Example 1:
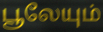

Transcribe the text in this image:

பூலேயும்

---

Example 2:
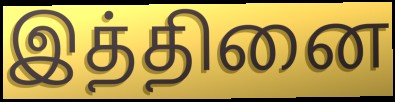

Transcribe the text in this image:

இத்தினை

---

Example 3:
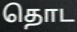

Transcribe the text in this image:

தொட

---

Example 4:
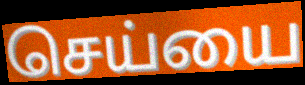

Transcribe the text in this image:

செய்யை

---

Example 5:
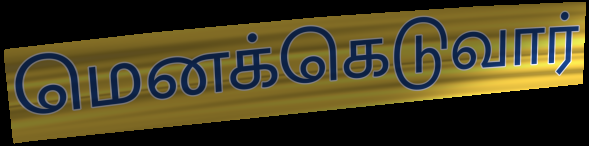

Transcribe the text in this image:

மெனக்கெடுவார்